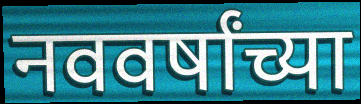
नववर्षांच्या